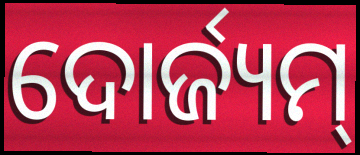
ଦୋର୍ଜ୍ୟମ୍